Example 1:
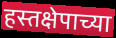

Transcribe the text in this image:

हस्तक्षेपाच्या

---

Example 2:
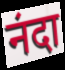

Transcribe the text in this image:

नंदा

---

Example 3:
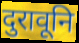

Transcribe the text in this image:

दुरावूनि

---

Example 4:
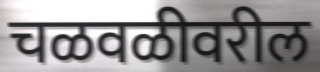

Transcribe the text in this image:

चळवळीवरील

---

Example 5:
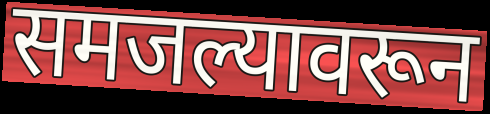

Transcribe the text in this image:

समजल्यावरून